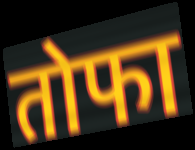
तोफा